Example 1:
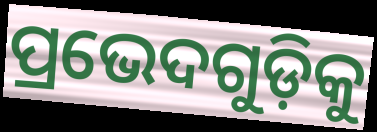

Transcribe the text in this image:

ପ୍ରଭେଦଗୁଡ଼ିକୁ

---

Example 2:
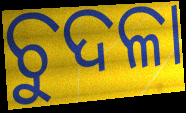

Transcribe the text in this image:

ଚୁଦଳା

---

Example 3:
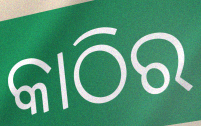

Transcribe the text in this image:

କାଠିର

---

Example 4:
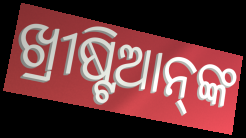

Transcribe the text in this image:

ଖ୍ରୀଷ୍ଟିଆନ୍‌ଙ୍କ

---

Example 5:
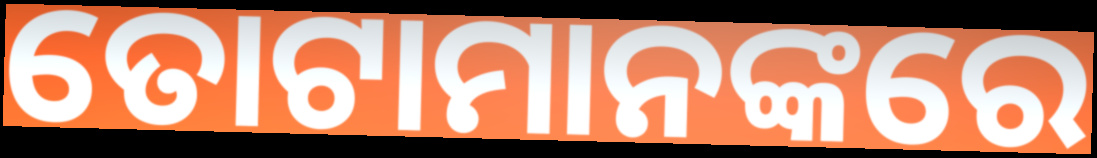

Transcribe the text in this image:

ତୋଟାମାନଙ୍କରେ